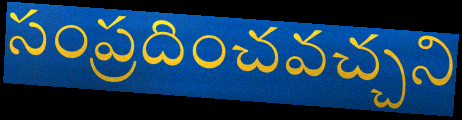
సంప్రదించవచ్చని